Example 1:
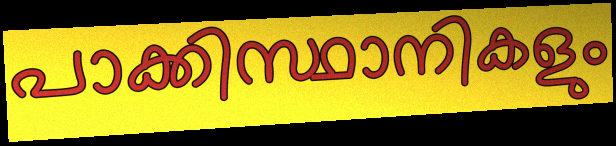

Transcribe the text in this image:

പാക്കിസ്ഥാനികളും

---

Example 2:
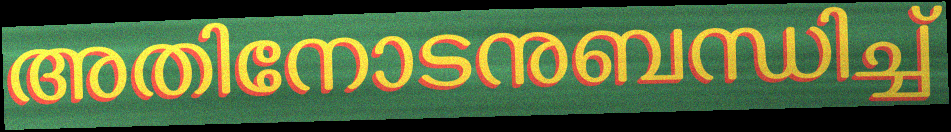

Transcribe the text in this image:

അതിനോടനുബന്ധിച്ച്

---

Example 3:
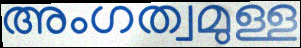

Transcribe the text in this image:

അംഗത്വമുള്ള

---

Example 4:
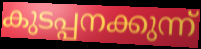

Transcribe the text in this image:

കുടപ്പനക്കുന്ന്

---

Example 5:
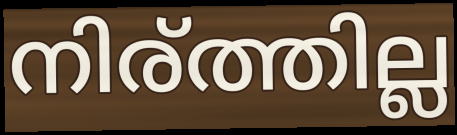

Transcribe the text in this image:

നിര്ത്തില്ല